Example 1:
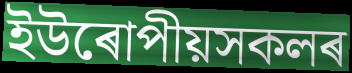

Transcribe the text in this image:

ইউৰোপীয়সকলৰ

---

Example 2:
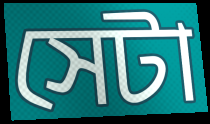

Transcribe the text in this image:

সেটা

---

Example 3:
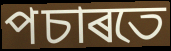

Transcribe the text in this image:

পচাৰতে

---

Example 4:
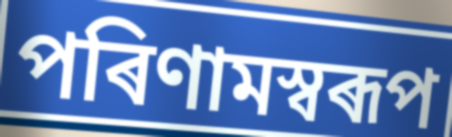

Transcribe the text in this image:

পৰিণামস্বৰূপ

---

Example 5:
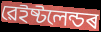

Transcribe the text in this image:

ৱেইষ্টলেন্ডৰ